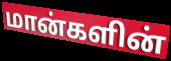
மான்களின்